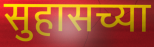
सुहासच्या